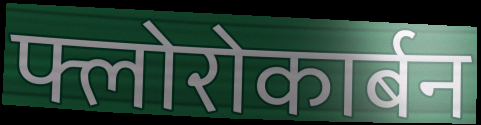
फ्लोरोकार्बन